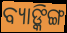
ବ୍ୟାଙ୍କିଙ୍ଗ